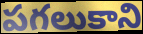
పగలుకాని